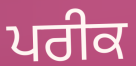
ਪਰੀਕ